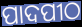
ପାଦପୀଠ